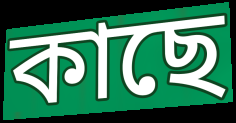
কাছে